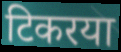
टिकरया